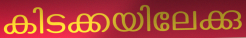
കിടക്കയിലേക്കു